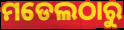
ମଡେଲଠାରୁ